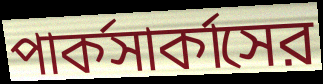
পার্কসার্কাসের